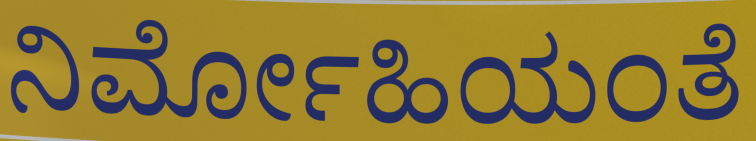
ನಿರ್ಮೋಹಿಯಂತೆ